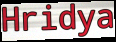
Hridya